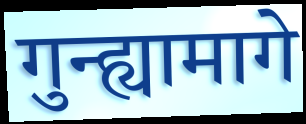
गुन्ह्यामागे